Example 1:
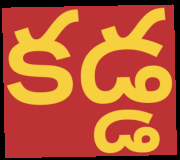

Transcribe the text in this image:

కడ్డ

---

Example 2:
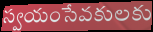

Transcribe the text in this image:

స్వయంసేవకులకు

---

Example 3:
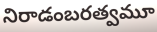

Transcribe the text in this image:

నిరాడంబరత్వమూ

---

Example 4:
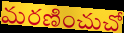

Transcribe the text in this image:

మరణించుచో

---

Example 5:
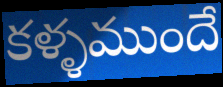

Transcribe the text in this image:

కళ్ళముందే